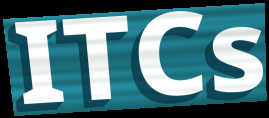
ITCs